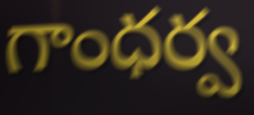
గాంధర్వ